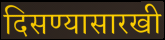
दिसण्यासारखी